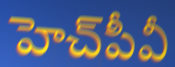
హెచ్‌పీవీ